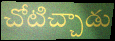
చోటిచ్చాడు